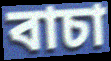
বাচা